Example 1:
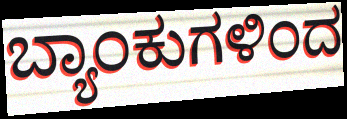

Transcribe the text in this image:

ಬ್ಯಾಂಕುಗಳಿಂದ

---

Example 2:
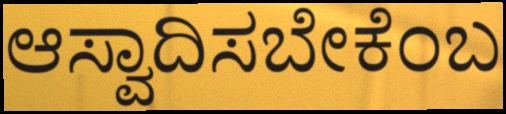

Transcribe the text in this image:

ಆಸ್ವಾದಿಸಬೇಕೆಂಬ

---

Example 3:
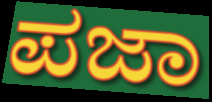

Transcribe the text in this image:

ಪಜಾ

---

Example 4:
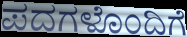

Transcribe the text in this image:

ಪದಗಳೊಂದಿಗೆ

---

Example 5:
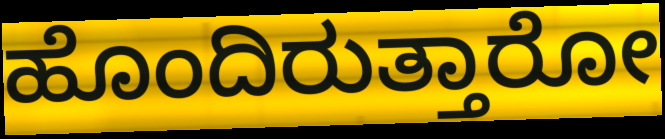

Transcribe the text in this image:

ಹೊಂದಿರುತ್ತಾರೋ